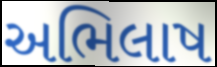
અભિલાષ